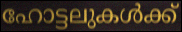
ഹോട്ടലുകൾക്ക്